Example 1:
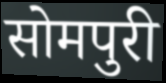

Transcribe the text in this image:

सोमपुरी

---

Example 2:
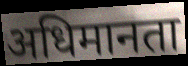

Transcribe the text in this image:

अधिमानता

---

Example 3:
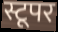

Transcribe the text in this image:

स्टूपर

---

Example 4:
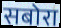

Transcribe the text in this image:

सबोरा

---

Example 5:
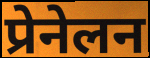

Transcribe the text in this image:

प्रेनेलन